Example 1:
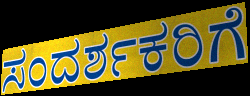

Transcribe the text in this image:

ಸಂದರ್ಶಕರಿಗೆ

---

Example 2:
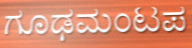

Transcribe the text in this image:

ಗೂಢಮಂಟಪ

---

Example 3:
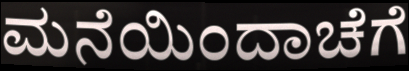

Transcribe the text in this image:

ಮನೆಯಿಂದಾಚೆಗೆ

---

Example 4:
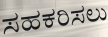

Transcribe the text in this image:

ಸಹಕರಿಸಲು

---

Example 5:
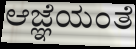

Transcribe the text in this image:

ಆಜ್ಞೆಯಂತೆ